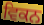
ਵਿਕਨ